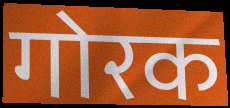
गोरक